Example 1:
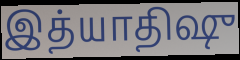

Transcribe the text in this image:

இத்யாதிஷு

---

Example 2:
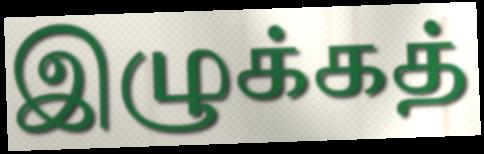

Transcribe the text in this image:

இழுக்கத்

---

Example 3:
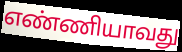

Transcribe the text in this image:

எண்ணியாவது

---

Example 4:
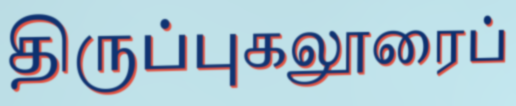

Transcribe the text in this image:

திருப்புகலூரைப்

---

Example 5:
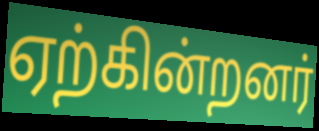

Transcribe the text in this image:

ஏற்கின்றனர்